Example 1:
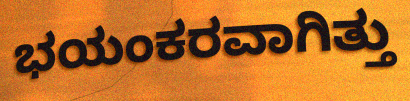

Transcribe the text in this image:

ಭಯಂಕರವಾಗಿತ್ತು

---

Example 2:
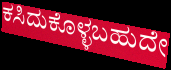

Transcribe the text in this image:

ಕಸಿದುಕೊಳ್ಳಬಹುದೇ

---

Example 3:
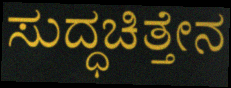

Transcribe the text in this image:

ಸುದ್ಧಚಿತ್ತೇನ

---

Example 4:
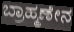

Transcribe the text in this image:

ಬ್ರಾಹ್ಮಣೇನ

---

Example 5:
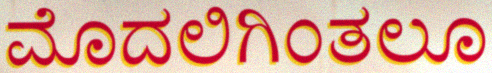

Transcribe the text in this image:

ಮೊದಲಿಗಿಂತಲೂ